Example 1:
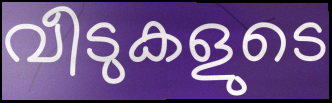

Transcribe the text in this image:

വീടുകളുടെ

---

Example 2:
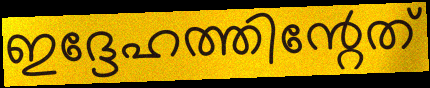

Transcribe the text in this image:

ഇദ്ദേഹത്തിന്റേത്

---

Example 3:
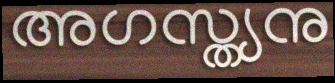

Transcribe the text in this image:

അഗസ്ത്യനു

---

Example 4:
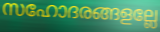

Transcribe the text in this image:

സഹോദരങ്ങളല്ലേ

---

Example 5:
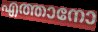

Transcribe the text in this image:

എത്താനോ